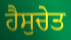
ਹੈਸੁਚੇਤ